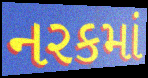
નરકમાં